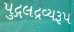
પુદ્ગલદ્રવ્યરૂપ